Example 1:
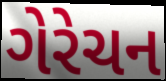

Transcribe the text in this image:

ગેરેચન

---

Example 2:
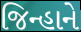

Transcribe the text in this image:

જિન્હાને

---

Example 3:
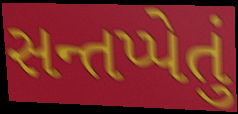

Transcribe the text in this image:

સન્તપ્પેતું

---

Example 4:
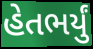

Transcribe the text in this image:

હેતભર્યું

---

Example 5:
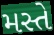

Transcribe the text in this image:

મસ્તે